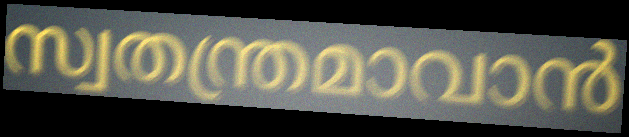
സ്വതന്ത്രമാവാൻ